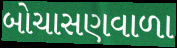
બોચાસણવાળા